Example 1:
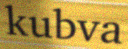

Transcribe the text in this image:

kubva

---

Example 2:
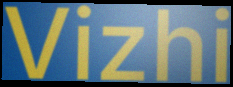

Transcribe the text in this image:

Vizhi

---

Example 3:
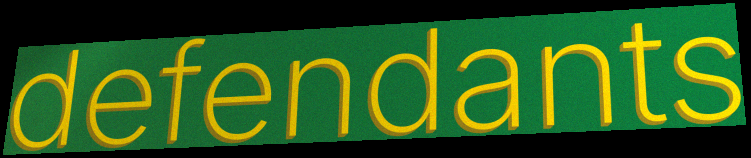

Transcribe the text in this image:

defendants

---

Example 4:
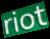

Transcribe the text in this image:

riot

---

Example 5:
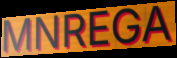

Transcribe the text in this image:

MNREGA